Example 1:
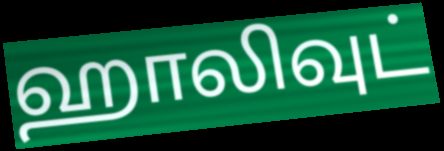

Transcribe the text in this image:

ஹாலிவுட்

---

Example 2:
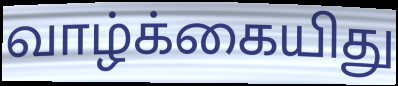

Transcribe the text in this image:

வாழ்க்கையிது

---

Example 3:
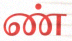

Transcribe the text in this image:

ண்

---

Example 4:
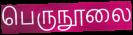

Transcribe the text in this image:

பெருநூலை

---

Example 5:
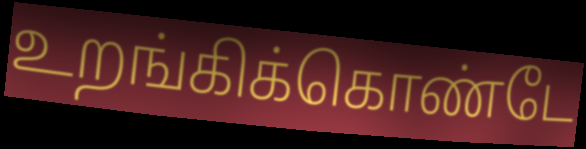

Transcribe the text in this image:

உறங்கிக்கொண்டே